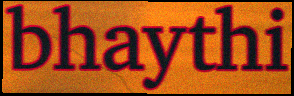
bhaythi